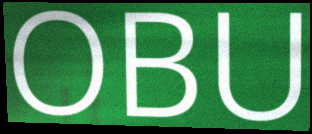
OBU